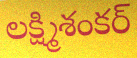
లక్ష్మిశంకర్